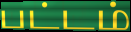
பட்டம்